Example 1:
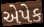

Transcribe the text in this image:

એપેક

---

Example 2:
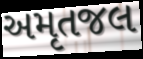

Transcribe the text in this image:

અમૃતજલ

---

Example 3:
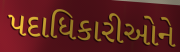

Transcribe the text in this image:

પદાધિકારીઓને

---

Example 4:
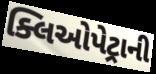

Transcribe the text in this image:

ક્લિઓપેટ્રાની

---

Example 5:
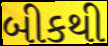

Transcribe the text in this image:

બીકથી